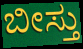
ಬೀಸ್ತು